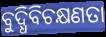
ବୁଦ୍ଧିବିଚକ୍ଷଣତା